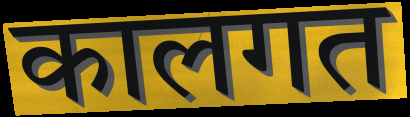
कालगत